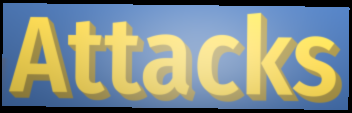
Attacks